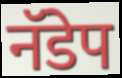
नॅडेप